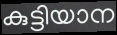
കുട്ടിയാന